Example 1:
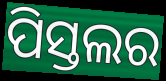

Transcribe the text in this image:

ପିସ୍ତଲର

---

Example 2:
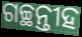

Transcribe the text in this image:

ଗଚ୍ଛନ୍ତୀହ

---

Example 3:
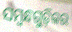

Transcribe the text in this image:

ସମ୍ବନ୍ଧଗୁଡ଼ିକର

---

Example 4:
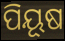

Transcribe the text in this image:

ପିୟୂଷ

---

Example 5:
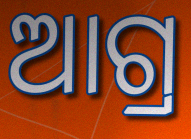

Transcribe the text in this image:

ଆଗ୍ର